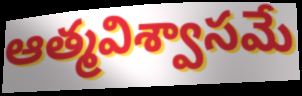
ఆత్మవిశ్వాసమే